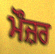
ਮੌਜ਼ਰ